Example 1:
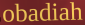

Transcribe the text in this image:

obadiah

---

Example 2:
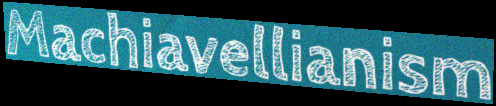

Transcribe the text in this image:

Machiavellianism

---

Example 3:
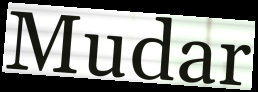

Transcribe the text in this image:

Mudar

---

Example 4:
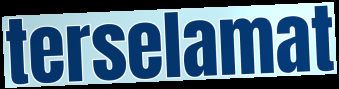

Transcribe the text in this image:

terselamat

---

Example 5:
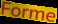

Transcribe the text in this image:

Forme